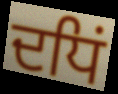
ਦਧਿਂ